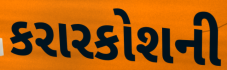
કરારકોશની